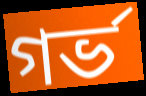
গৰ্ভ